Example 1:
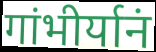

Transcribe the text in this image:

गांभीर्यानं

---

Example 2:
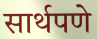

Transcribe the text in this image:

सार्थपणे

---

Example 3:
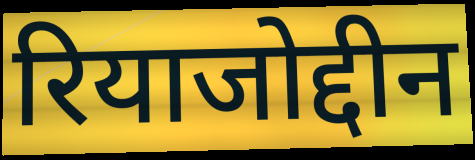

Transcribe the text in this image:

रियाजोद्दीन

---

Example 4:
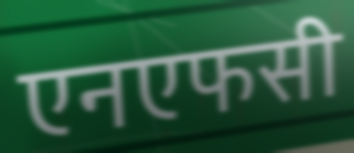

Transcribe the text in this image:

एनएफसी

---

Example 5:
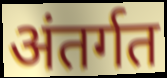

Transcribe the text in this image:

अंतर्गत